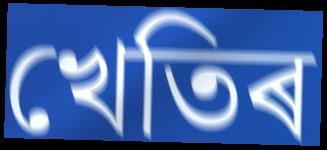
খেতিৰ